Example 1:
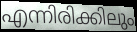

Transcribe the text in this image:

എന്നിരിക്കിലും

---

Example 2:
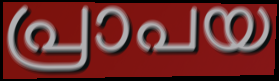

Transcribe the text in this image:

പ്രാപയ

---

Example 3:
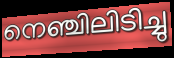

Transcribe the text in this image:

നെഞ്ചിലിടിച്ചു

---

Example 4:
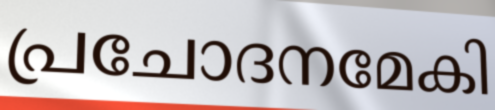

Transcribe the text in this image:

പ്രചോദനമേകി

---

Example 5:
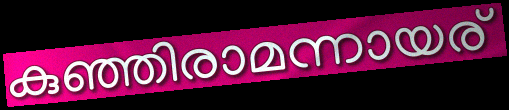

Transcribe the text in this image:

കുഞ്ഞിരാമന്നായര്